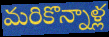
మరికొన్నాళ్ల